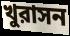
খুরাসন